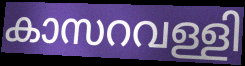
കാസറവള്ളി